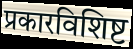
प्रकारविशिष्ट